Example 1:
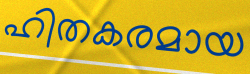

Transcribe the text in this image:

ഹിതകരമായ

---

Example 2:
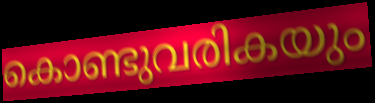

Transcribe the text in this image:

കൊണ്ടുവരികയും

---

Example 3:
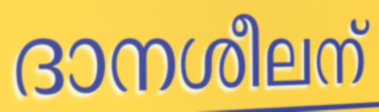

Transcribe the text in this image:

ദാനശീലന്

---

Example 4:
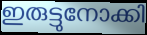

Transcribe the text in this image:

ഇരുട്ടുനോക്കി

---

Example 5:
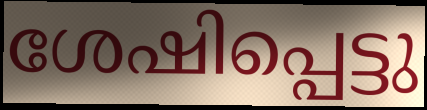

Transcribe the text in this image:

ശേഷിപ്പെട്ടു